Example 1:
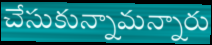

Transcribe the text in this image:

చేసుకున్నామన్నారు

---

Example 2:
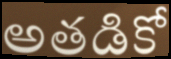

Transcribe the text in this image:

అతడికో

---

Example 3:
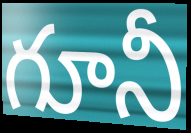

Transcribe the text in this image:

గూనీ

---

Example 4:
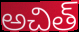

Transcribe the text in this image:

అచిత్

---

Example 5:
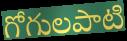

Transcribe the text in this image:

గోగులపాటి